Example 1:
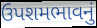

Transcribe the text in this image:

ઉપશમભાવનું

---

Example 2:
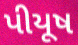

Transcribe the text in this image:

પીયૂષ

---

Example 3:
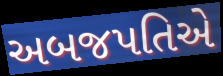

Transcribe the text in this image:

અબજપતિએ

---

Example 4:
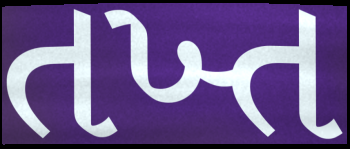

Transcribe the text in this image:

તખ્ત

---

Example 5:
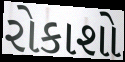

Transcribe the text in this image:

રોકાશો